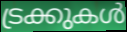
ട്രക്കുകൾ